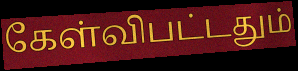
கேள்விபட்டதும்